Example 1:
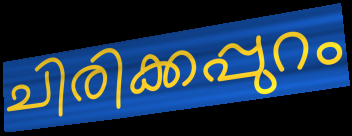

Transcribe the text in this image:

ചിരിക്കപ്പുറം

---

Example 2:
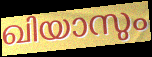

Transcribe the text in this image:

ഖിയാസും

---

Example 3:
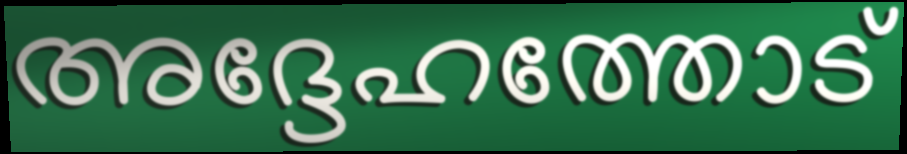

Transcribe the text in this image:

അദ്ദേഹത്തോട്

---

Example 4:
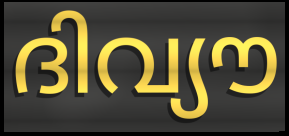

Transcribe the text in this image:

ദിവ്യൗ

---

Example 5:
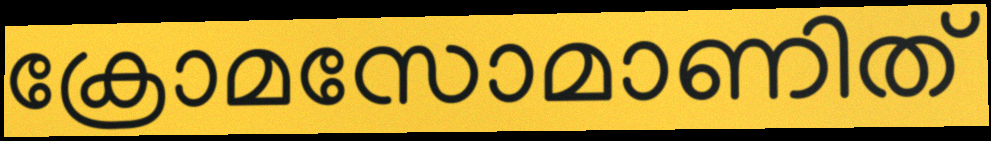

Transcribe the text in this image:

ക്രോമസോമാണിത്